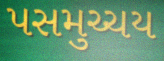
પસમુચ્ચય